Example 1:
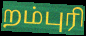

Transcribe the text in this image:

றம்புரி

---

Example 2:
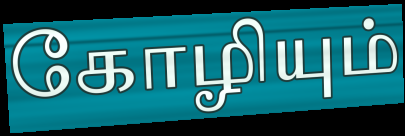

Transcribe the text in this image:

கோழியும்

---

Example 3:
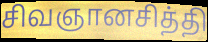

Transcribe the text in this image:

சிவஞானசித்தி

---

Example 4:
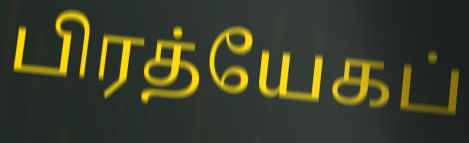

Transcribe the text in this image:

பிரத்யேகப்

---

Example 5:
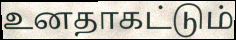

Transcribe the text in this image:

உனதாகட்டும்